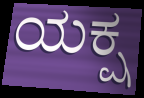
ಯಕ್ಷ